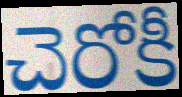
చెరోకీ